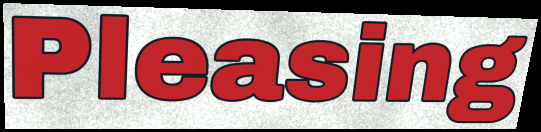
Pleasing